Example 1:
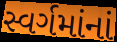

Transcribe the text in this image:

સ્વર્ગમાંનાં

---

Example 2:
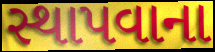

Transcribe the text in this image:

સ્થાપવાના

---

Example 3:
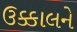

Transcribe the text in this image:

ઉક્કાલને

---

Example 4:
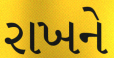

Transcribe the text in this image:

રાખને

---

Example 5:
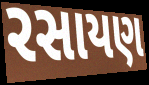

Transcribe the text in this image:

રસાયણ